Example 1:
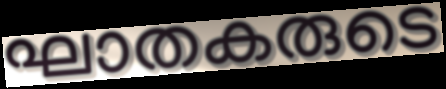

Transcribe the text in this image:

ഘാതകരുടെ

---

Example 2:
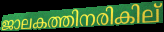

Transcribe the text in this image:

ജാലകത്തിനരികില്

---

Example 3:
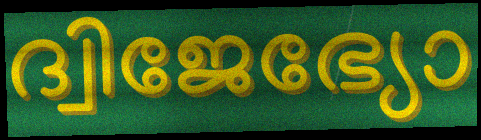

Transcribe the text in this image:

ദ്വിജേഭ്യോ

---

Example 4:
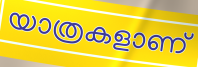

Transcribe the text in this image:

യാത്രകളാണ്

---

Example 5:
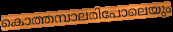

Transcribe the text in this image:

കൊത്തമ്പാലരിപോലെയും